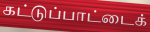
கட்டுப்பாட்டைக்